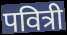
पवित्री